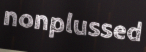
nonplussed